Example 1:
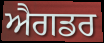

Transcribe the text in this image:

ਐਗਡਰ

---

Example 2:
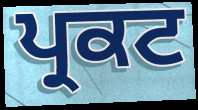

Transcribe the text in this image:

ਪ੍ਰਕਟ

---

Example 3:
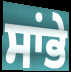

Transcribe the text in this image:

ਸਾਂਭੇ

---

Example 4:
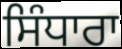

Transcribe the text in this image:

ਸਿੰਧਾਰਾ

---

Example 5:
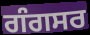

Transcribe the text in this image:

ਗੰਗਸਰ